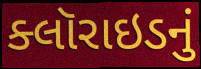
ક્લૉરાઇડનું